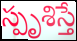
స్పృశిస్తే